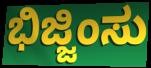
ಭಿಜ್ಜಿಂಸು